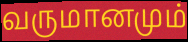
வருமானமும்